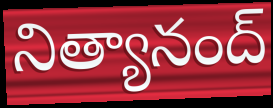
నిత్యానంద్